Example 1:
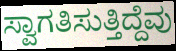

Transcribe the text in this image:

ಸ್ವಾಗತಿಸುತ್ತಿದ್ದೆವು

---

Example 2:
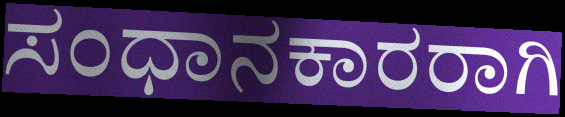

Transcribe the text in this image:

ಸಂಧಾನಕಾರರಾಗಿ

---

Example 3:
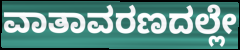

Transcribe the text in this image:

ವಾತಾವರಣದಲ್ಲೇ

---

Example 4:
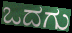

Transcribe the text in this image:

ಒದಗು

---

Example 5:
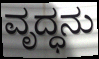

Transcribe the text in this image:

ವೃದ್ಧನು